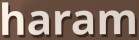
haram